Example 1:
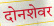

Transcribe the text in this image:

दोनशेवर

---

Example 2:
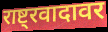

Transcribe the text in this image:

राष्ट्रवादावर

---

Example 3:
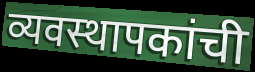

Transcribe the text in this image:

व्यवस्थापकांची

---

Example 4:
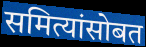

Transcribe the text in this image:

समित्यांसोबत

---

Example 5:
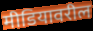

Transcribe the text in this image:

मीडियावरील